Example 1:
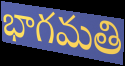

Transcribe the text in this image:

భాగమతి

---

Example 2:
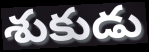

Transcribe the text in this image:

శుకుడు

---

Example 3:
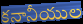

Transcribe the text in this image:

కనానీయుల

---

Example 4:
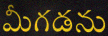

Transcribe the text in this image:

మీగడను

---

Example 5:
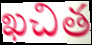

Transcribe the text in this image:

ఖచిత